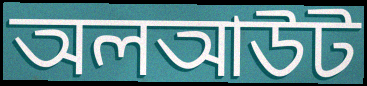
অলআউট